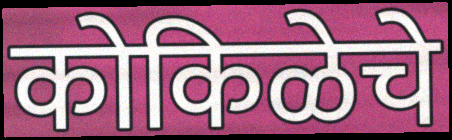
कोकिळेचे